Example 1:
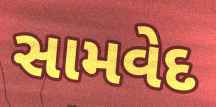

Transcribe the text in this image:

સામવેદ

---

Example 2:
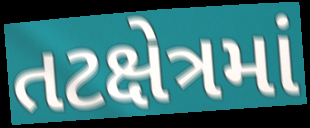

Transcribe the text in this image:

તટક્ષેત્રમાં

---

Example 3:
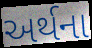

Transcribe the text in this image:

અર્થના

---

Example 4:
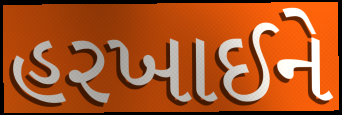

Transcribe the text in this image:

હરખાઈને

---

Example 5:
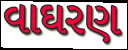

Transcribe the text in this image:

વાઘરણ